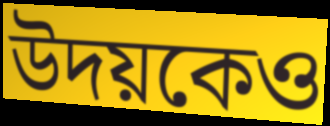
উদয়কেও